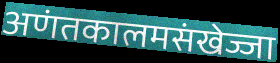
अणंतकालमसंखेज्जा